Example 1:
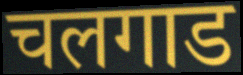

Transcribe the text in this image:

चलगाड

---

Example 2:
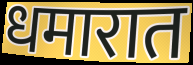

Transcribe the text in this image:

धमारात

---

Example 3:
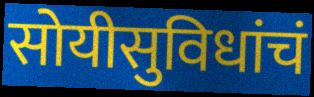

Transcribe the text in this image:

सोयीसुविधांचं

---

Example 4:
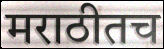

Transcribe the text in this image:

मराठीतच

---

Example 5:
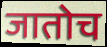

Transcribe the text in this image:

जातोच